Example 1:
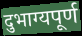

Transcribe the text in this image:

दुभाग्यपूर्ण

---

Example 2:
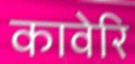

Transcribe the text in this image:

कावेरि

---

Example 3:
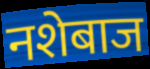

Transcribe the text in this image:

नशेबाज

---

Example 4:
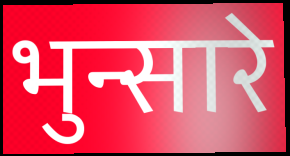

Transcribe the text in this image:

भुन्सारे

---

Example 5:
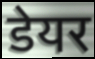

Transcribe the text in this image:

डेयर